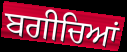
ਬਗੀਚਿਆਂ